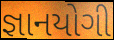
જ્ઞાનયોગી